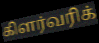
கிளர்வரிக்